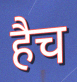
हैच